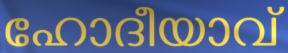
ഹോദീയാവ്